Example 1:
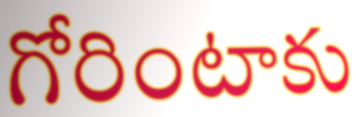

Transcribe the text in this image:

గోరింటాకు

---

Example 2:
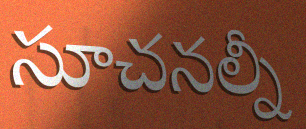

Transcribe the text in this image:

సూచనల్నీ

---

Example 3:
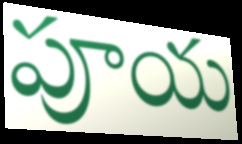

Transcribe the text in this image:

పూయ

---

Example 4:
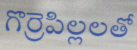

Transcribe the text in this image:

గొర్రెపిల్లలతో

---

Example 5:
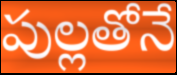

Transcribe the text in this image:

పుల్లతోనే